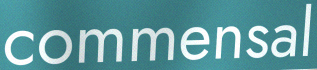
commensal